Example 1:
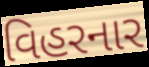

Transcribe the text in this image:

વિહરનાર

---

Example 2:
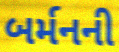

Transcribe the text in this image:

બર્મનની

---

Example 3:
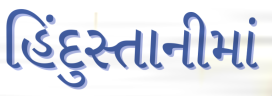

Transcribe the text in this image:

હિંદુસ્તાનીમાં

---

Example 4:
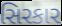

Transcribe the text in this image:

સિરકાર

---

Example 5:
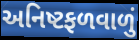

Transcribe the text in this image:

અનિષ્ટફળવાળું